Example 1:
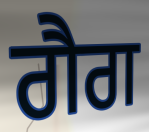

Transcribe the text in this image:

ਗੈਗ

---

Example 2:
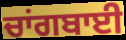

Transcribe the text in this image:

ਚਾਂਗਬਾਈ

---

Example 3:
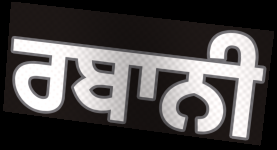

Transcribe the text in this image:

ਰਬਾਨੀ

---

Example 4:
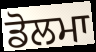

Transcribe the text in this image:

ਡੋਲਮਾ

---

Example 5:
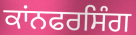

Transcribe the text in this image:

ਕਾਂਨਫਰਸਿੰਗ